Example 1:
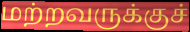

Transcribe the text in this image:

மற்றவருக்குச்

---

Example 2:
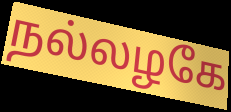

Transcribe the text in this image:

நல்லழகே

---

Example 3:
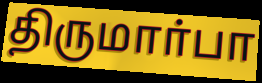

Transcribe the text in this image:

திருமார்பா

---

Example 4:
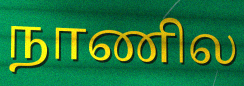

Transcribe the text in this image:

நாணில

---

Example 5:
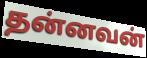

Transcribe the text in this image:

தன்னவன்